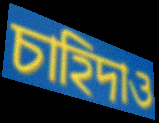
চাহিদাও